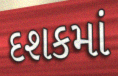
દશકમાં